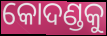
କୋଦଣ୍ଡକୁ